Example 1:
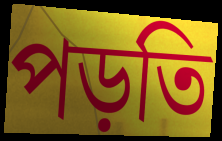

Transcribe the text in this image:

পড়তি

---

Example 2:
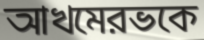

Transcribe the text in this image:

আখমেরভকে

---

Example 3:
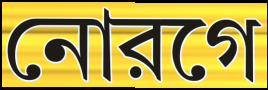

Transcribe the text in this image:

নোরগে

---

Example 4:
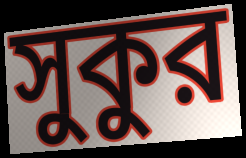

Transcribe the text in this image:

সুকুর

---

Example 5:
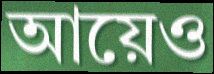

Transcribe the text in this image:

আয়েও